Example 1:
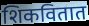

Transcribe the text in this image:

शिकवितात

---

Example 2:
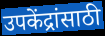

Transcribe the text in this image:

उपकेंद्रांसाठी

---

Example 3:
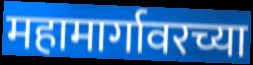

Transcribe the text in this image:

महामार्गावरच्या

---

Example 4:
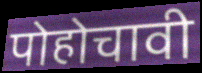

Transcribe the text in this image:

पोहोचावी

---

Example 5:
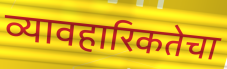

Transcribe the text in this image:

व्यावहारिकतेचा